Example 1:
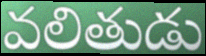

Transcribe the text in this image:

వలితుడు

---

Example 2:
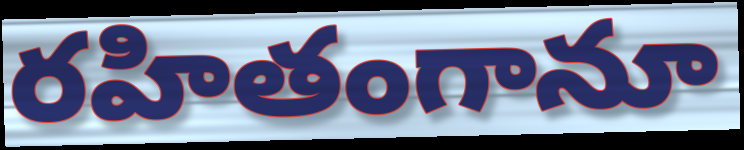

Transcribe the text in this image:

రహితంగానూ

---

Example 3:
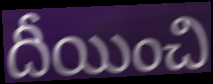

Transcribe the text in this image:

దీయించి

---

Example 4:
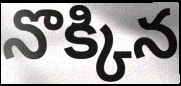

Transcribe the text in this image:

నొక్కిన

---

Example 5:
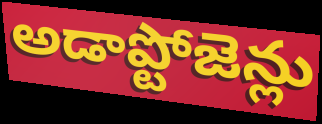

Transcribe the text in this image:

అడాప్టోజెన్లు